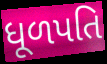
ધૂળપતિ